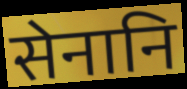
सेनानि